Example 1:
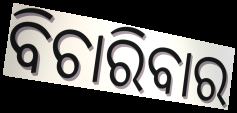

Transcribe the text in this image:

ବିଚାରିବାର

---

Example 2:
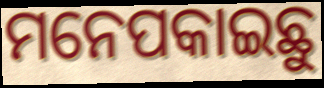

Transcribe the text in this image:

ମନେପକାଇଛୁ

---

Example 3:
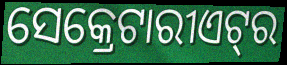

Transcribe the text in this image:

ସେକ୍ରେଟାରୀଏଟ୍‍ର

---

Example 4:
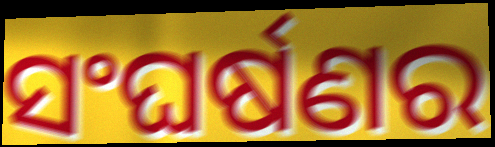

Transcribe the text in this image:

ସଂଘର୍ଷଣର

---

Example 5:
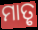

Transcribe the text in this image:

ମାତୃ